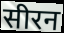
सीरन